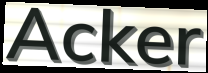
Acker